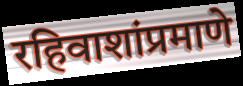
रहिवाशांप्रमाणे